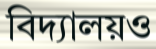
বিদ্যালয়ও